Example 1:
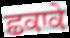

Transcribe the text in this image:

ਛਕਾਕੇ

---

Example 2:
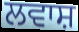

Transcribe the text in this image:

ਲਵਾਸ਼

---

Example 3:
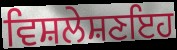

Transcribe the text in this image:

ਵਿਸ਼ਲੇਸ਼ਣਇਹ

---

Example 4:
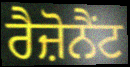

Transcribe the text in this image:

ਰੈਜ਼ੋਨੈਂਟ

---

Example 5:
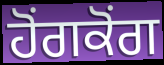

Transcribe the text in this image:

ਹੋਂਗਕੋਂਗ